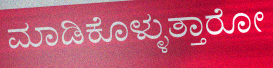
ಮಾಡಿಕೊಳ್ಳುತ್ತಾರೋ